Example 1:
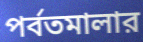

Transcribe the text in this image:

পর্বতমালার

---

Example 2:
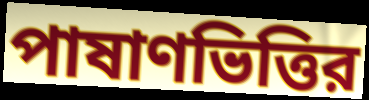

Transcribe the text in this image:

পাষাণভিত্তির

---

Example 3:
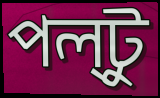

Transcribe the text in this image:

পল্‌টু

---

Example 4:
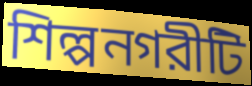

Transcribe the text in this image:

শিল্পনগরীটি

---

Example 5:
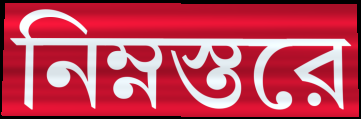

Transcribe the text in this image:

নিম্নস্তরে